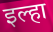
इल्हा